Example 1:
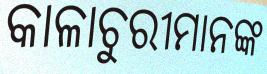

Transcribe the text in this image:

କାଳାଚୁରୀମାନଙ୍କ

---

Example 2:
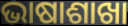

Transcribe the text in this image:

ଭାଷାଶାଖା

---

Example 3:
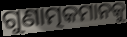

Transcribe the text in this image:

ଗୁଣାତ୍ମକମାନକୁ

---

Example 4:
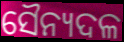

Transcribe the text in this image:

ସୈନ୍ୟଦଳ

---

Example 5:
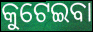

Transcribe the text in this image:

କୁଟେଇବା